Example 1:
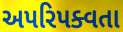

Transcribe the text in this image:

અપરિપક્વતા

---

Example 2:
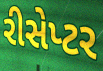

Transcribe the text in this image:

રીસેપ્ટર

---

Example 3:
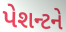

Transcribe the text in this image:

પેશન્ટને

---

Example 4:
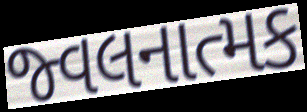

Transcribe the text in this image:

જ્વલનાત્મક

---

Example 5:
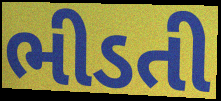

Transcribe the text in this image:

ભીડતી